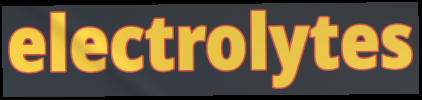
electrolytes